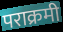
पराक्रमी